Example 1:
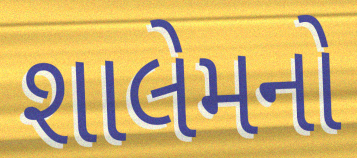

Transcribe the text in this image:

શાલેમનો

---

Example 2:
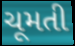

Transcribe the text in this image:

ચૂમતી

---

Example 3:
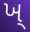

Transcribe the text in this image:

ખ્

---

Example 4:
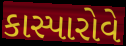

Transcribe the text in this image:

કાસ્પારોવે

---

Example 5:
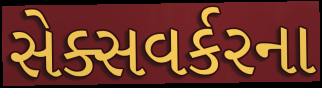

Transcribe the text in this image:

સેક્સવર્કરના